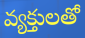
వ్యక్తులతో